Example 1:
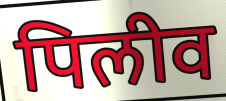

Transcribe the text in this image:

पिलीव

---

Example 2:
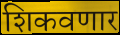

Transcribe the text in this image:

शिकवणार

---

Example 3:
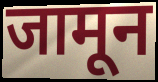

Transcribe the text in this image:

जामून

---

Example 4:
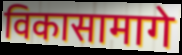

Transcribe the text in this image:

विकासामागे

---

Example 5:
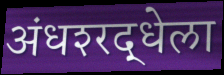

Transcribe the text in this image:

अंधश्रद्धेला